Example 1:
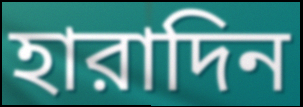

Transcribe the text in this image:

হারাদিন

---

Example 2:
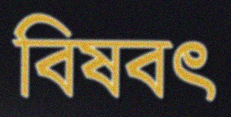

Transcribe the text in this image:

বিষবৎ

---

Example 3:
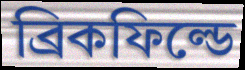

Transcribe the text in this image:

ব্রিকফিল্ডে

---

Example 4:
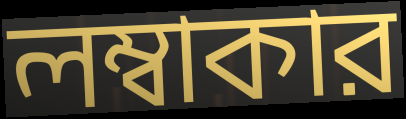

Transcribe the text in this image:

লম্বাকার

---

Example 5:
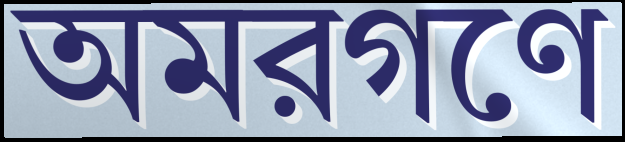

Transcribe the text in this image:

অমরগণে